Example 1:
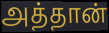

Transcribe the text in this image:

அத்தான்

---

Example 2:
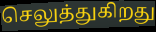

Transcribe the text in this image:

செலுத்துகிறது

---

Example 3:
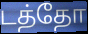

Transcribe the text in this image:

டத்தோ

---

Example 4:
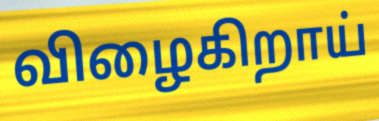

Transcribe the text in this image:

விழைகிறாய்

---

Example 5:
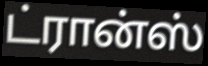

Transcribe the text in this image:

ட்ரான்ஸ்